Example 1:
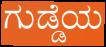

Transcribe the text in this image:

ಗುಡ್ಡೆಯ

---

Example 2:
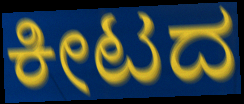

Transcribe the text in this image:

ಕೀಟದ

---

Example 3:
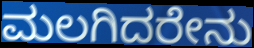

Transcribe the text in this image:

ಮಲಗಿದರೇನು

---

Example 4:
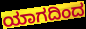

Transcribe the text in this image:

ಯಾಗದಿಂದ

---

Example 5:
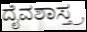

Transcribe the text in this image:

ದೈವಶಾಸ್ತ್ರ